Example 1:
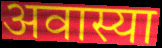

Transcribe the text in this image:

अवास्या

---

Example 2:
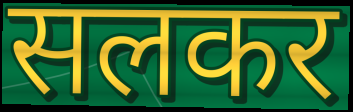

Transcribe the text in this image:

सलकर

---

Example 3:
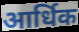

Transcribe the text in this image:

आर्धिक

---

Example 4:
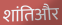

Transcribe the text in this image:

शांतिऔर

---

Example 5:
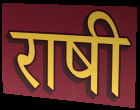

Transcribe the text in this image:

राषी